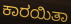
ಕಾರಯಿತಾ